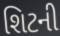
શિટની